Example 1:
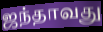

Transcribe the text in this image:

ஜந்தாவது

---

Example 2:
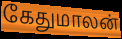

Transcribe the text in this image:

கேதுமாலன்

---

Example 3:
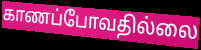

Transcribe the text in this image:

காணப்போவதில்லை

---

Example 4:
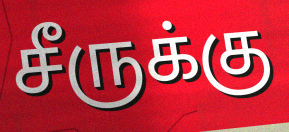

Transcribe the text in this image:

சீருக்கு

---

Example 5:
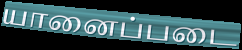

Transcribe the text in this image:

யானைப்படை